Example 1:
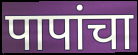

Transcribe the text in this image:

पापांचा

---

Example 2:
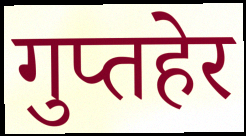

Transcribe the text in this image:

गुप्तहेर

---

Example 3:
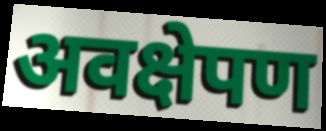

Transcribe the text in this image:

अवक्षेपण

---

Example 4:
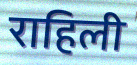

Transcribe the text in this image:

राहिली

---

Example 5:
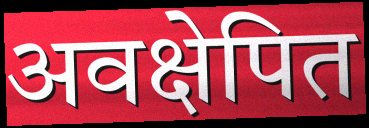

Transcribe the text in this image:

अवक्षेपित